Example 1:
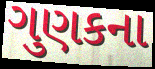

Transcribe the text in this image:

ગુણકના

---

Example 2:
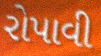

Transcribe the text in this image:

રોપાવી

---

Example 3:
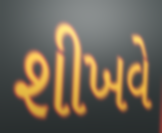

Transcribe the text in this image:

શીખવે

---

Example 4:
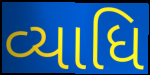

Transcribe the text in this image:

વ્યાધિ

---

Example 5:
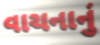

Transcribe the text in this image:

વાચનાનું